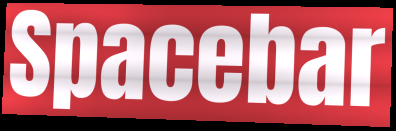
Spacebar